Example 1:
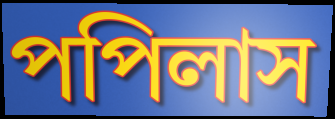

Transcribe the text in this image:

পপিলাস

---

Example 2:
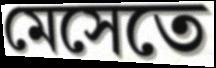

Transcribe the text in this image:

মেসেতে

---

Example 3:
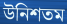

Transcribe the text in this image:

উনিশতম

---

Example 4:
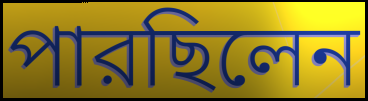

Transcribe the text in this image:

পারছিলেন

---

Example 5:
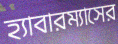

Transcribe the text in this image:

হ্যাবারম্যাসের